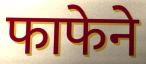
फाफेने